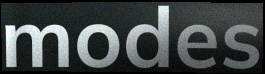
modes